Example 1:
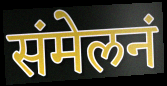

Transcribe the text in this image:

संमेलनं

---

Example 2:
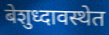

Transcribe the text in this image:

बेशुध्दावस्थेत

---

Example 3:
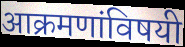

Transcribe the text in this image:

आक्रमणांविषयी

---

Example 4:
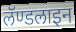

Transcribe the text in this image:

लॅण्डलाइन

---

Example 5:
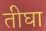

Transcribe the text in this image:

तीघा